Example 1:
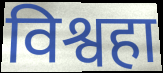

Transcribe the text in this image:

विश्वहा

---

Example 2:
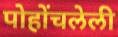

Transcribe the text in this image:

पोहोंचलेली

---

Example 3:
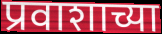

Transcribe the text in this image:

प्रवाशाच्या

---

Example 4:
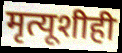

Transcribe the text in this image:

मृत्यूशीही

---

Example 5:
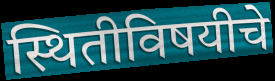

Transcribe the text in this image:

स्थितीविषयीचे